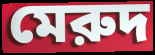
মেরুদ